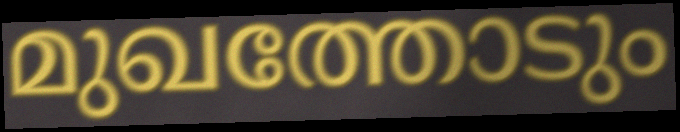
മുഖത്തോടും